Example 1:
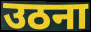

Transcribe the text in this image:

उठना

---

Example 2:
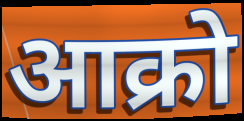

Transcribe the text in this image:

आक्रो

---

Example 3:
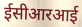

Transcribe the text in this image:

ईसीआरआई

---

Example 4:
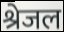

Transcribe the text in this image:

श्रेजल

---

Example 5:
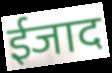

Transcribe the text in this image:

ईजाद